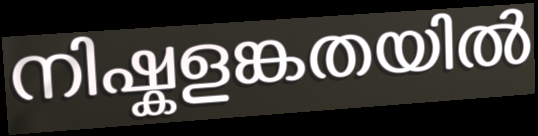
നിഷ്കളങ്കതയിൽ